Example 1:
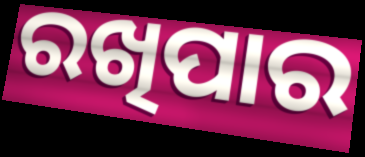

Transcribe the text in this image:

ରଖିପାର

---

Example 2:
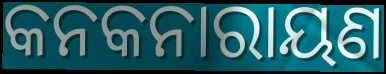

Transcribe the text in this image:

କନକନାରାୟଣ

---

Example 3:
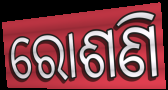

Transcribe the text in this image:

ରୋଶଣି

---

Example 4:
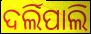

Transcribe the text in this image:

ଦର୍ଲିପାଲି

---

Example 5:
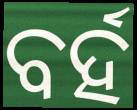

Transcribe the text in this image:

ବର୍ହ